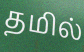
தமில்